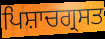
ਪਿਸ਼ਾਚਗ੍ਰਸਤ